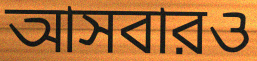
আসবারও